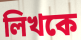
লিখকে